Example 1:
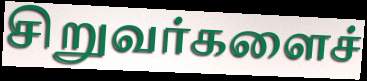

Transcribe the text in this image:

சிறுவர்களைச்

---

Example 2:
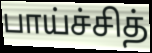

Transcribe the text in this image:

பாய்ச்சித்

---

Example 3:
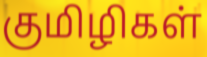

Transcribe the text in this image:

குமிழிகள்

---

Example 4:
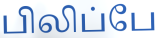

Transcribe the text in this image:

பிலிப்பே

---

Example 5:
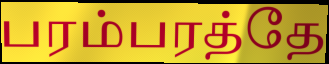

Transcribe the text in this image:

பரம்பரத்தே